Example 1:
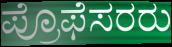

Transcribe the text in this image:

ಪ್ರೊಫೆಸರರು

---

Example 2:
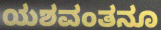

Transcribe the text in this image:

ಯಶವಂತನೂ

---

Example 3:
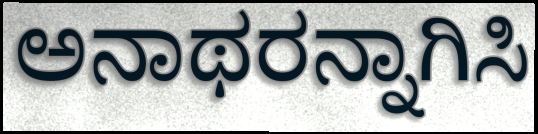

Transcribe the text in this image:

ಅನಾಥರನ್ನಾಗಿಸಿ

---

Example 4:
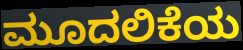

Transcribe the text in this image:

ಮೂದಲಿಕೆಯ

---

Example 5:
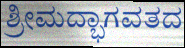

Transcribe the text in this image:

ಶ್ರೀಮದ್ಭಾಗವತದ